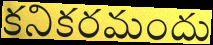
కనికరమందు